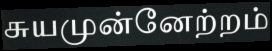
சுயமுன்னேற்றம்